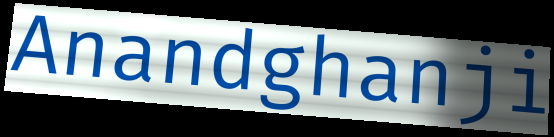
Anandghanji